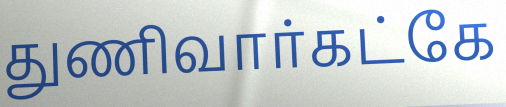
துணிவார்கட்கே